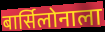
बार्सिलोनाला